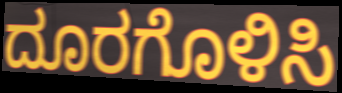
ದೂರಗೊಳಿಸಿ